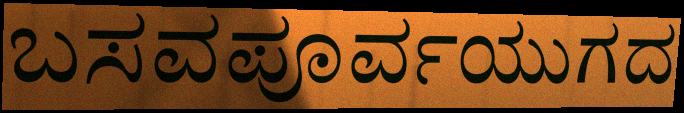
ಬಸವಪೂರ್ವಯುಗದ